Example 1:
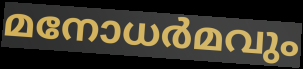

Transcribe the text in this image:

മനോധർമവും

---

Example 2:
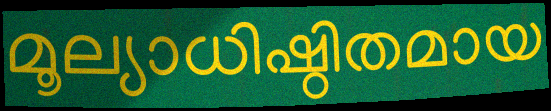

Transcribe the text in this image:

മൂല്യാധിഷ്ഠിതമായ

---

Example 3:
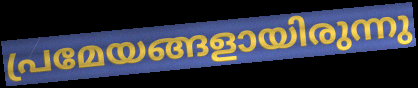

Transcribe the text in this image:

പ്രമേയങ്ങളായിരുന്നു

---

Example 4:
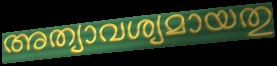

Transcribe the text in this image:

അത്യാവശ്യമായതു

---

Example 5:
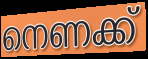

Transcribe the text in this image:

നെണക്ക്